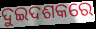
ଦୁଇଦଶକରେ